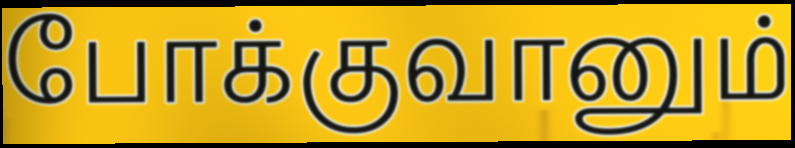
போக்குவானும்